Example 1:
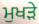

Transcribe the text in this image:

ਮੁਖੜੇ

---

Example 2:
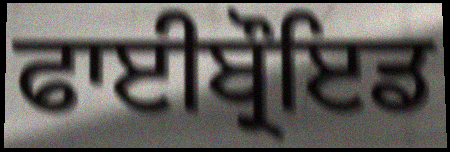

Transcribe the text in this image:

ਫਾਈਬ੍ਰੌਇਡ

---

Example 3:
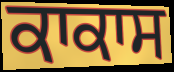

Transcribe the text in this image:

ਕਾਕਾਸ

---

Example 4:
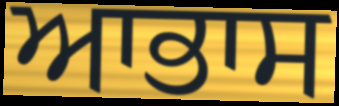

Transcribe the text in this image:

ਆਭਾਸ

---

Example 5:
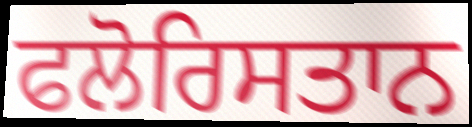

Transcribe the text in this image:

ਫਲੋਰਿਸਤਾਨ